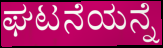
ಘಟನೆಯನ್ನೆ